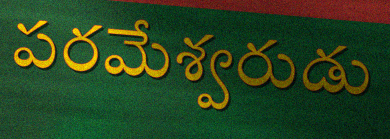
పరమేశ్వరుడు